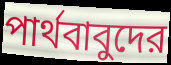
পার্থবাবুদের